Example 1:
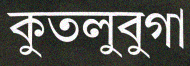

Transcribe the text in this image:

কুতলুবুগা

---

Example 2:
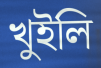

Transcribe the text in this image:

খুইলি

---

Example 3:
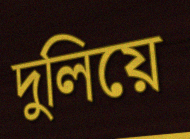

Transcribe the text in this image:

দুলিয়ে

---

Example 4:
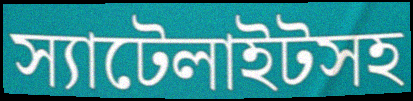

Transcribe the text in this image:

স্যাটেলাইটসহ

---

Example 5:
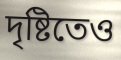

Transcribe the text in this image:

দৃষ্টিতেও